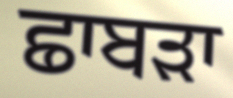
ਛਾਬੜਾ